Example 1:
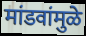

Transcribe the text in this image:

मांडवांमुळे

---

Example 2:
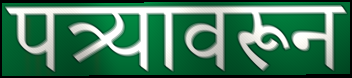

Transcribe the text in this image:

पत्र्यावरून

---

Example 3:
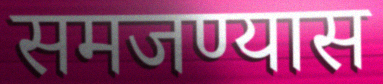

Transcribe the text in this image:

समजण्यास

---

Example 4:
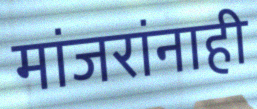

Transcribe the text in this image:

मांजरांनाही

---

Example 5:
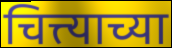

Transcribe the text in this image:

चित्त्याच्या